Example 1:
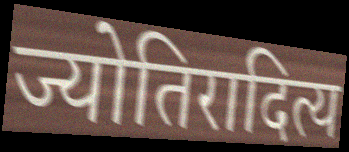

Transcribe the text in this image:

ज्योतिरादित्य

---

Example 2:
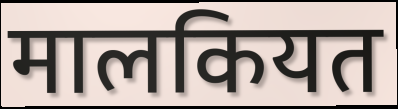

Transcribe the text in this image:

मालकियत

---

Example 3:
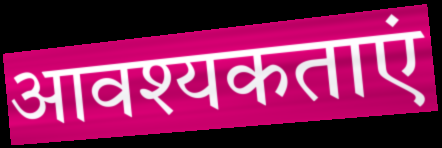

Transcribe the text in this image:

आवश्‍यकताएं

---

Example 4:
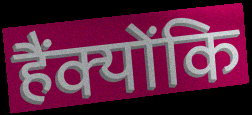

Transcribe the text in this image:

हैंक्योंकि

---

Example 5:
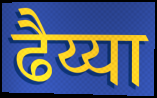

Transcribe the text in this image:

ढैय्या